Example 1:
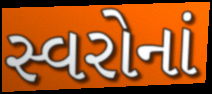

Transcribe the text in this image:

સ્વરોનાં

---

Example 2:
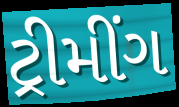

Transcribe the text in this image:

ટ્રીમીંગ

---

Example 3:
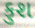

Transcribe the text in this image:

કુશ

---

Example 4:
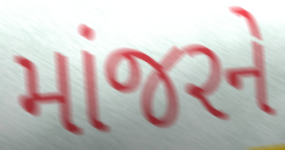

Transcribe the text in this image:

માંજરને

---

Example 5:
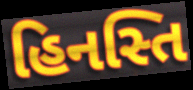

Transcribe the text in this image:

હિનસ્તિ